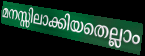
മനസ്സിലാക്കിയതെല്ലാം